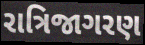
રાત્રિજાગરણ